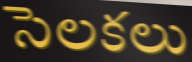
సెలకలు